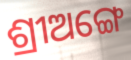
ଶ୍ରୀଅଙ୍ଗେ